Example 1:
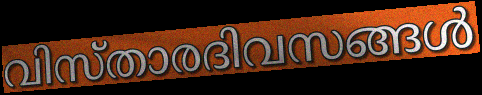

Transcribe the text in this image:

വിസ്താരദിവസങ്ങൾ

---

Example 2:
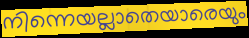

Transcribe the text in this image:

നിന്നെയല്ലാതെയാരെയും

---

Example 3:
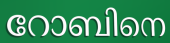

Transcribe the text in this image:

റോബിനെ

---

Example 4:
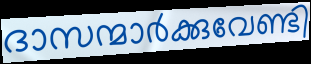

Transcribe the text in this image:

ദാസന്മാർക്കുവേണ്ടി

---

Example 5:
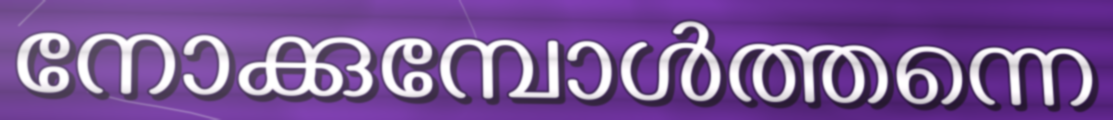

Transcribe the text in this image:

നോക്കുമ്പോൾത്തന്നെ